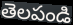
తెలపండి